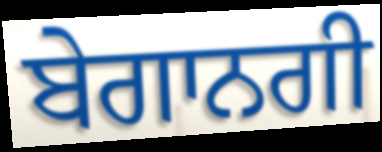
ਬੇਗਾਨਗੀ